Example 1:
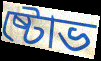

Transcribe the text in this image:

ষ্টোভ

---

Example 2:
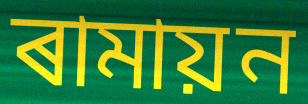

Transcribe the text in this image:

ৰামায়ন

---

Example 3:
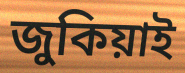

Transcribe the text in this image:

জুকিয়াই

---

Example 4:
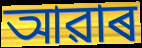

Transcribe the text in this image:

আৱাৰ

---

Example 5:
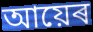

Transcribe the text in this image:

আয়েৰ